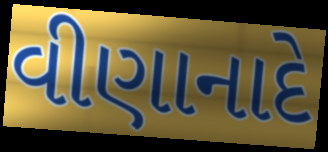
વીણાનાદે